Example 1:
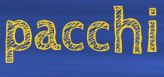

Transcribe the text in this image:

pacchi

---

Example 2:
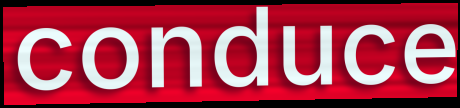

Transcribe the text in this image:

conduce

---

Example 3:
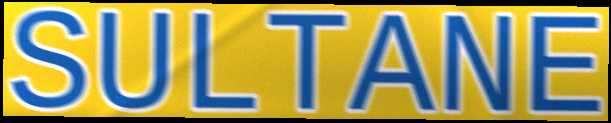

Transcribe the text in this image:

SULTANE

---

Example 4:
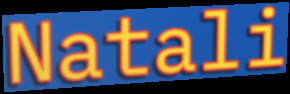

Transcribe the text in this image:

Natali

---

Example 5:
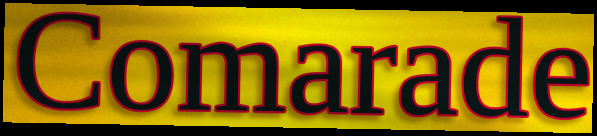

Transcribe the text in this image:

Comarade